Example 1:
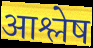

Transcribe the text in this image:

आश्लेष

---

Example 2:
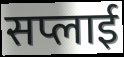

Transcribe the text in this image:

सप्‍लाई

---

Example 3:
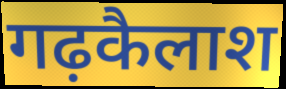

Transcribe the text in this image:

गढ़कैलाश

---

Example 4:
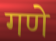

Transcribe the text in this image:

गणे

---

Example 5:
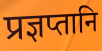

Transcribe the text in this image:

प्रज्ञप्तानि